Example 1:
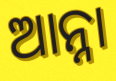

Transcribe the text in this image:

ଆନ୍ନା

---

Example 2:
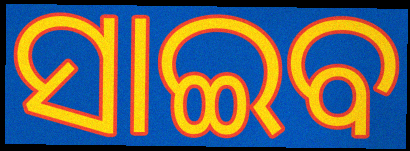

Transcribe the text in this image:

ସାଇବ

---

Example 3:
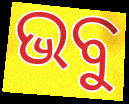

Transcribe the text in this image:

ଭବୁ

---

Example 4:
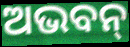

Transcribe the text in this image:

ଅଭବନ୍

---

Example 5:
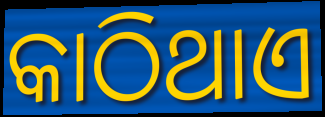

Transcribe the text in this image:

କାଠିଥାଏ